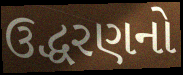
ઉદ્ધરણનો